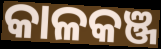
କାଳକଞ୍ଜ